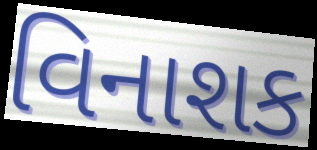
વિનાશક